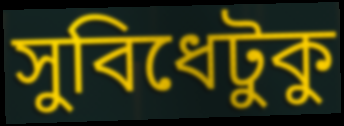
সুবিধেটুকু